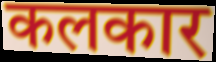
कलकार